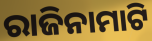
ରାଜିନାମାଟି